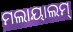
ମଲାୟାଲମ୍